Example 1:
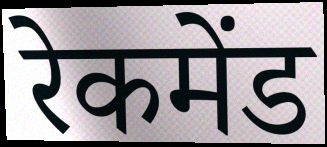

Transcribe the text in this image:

रेकमेंड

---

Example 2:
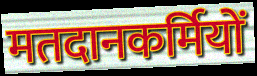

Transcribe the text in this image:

मतदानकर्मियों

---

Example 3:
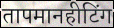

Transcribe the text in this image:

तापमानहीटिंग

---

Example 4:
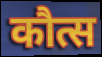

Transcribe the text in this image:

कौत्स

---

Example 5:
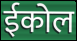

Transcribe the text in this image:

ईकोल